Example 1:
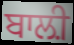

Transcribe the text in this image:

ਬਾਲ਼ੀ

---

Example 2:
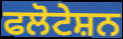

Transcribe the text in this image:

ਫਲੋਟੇਸ਼ਨ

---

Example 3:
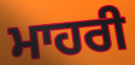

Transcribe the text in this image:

ਮਾਹਰੀ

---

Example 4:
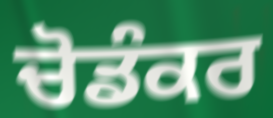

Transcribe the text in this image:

ਚੋਡੰਕਰ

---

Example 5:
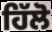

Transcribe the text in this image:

ਹਿੱਲੋ